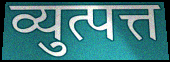
व्युत्पत्त